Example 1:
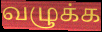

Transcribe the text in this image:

வழுக்க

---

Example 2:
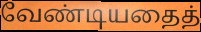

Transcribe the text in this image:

வேண்டியதைத்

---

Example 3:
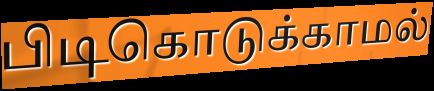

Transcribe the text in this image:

பிடிகொடுக்காமல்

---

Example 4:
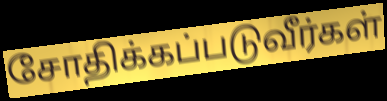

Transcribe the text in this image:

சோதிக்கப்படுவீர்கள்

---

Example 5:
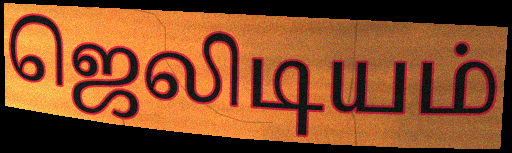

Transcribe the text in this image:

ஜெலிடியம்